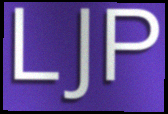
LJP